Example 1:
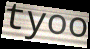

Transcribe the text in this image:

tyoo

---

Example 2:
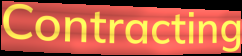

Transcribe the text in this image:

Contracting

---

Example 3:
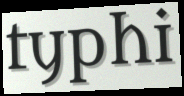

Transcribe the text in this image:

typhi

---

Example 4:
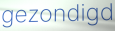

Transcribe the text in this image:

gezondigd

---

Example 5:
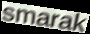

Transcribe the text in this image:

smarak